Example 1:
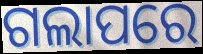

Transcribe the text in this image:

ଗଲାପରେ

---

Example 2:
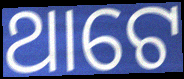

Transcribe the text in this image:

ଥାଟେ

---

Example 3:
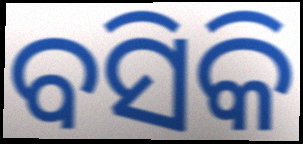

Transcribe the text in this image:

ବସିକି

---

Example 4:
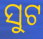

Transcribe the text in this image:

ସୁଟ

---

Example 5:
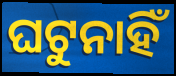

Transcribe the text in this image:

ଘଟୁନାହିଁ